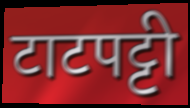
टाटपट्टी